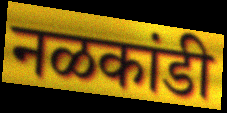
नळकांडी